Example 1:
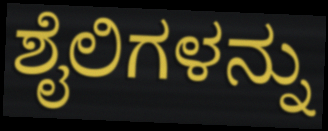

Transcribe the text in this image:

ಶೈಲಿಗಳನ್ನು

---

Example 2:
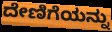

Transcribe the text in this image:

ದೇಣಿಗೆಯನ್ನು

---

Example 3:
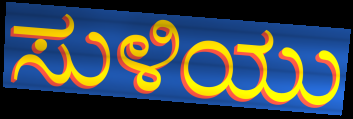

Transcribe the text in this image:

ಸುಳಿಯು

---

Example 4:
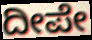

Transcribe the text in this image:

ದೀಪೇ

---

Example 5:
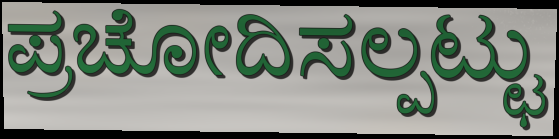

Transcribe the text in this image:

ಪ್ರಚೋದಿಸಲ್ಪಟ್ಟು